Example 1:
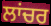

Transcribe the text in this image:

ਲਾਂਚਰ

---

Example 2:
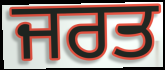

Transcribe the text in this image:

ਜਰਤ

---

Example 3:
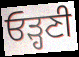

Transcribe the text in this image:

ਓੜ੍ਹਣੀ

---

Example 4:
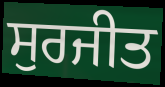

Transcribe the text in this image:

ਸੁਰਜੀਤ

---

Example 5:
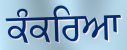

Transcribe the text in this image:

ਕੰਕਰਿਆ